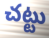
చట్టు